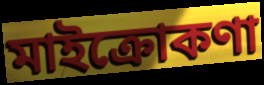
মাইক্রোকণা